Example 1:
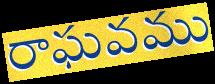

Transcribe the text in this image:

రాఘవము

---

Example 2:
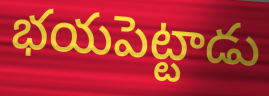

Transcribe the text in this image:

భయపెట్టాడు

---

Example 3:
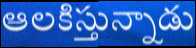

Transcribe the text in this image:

ఆలకిస్తున్నాడు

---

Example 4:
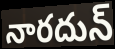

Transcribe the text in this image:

నారదున్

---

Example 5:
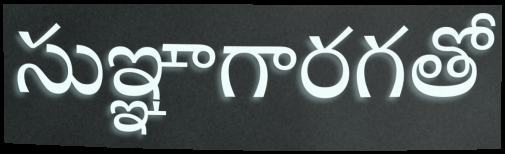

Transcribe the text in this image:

సుఞ్ఞాగారగతో